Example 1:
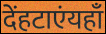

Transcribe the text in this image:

देंहटाएंयहाँ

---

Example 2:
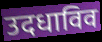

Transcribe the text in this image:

उदधाविव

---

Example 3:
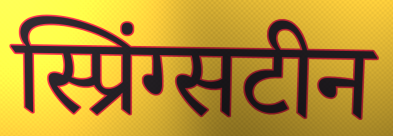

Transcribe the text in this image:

स्प्रिंग्सटीन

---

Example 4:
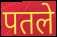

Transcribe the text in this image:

पतले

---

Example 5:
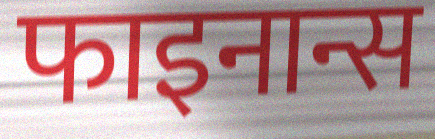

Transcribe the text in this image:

फाइनान्स